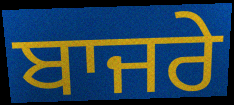
ਬਾਜਰੇ